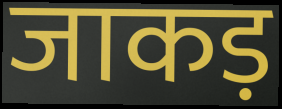
जाकड़